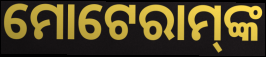
ମୋଟେରାମ୍‌ଙ୍କ